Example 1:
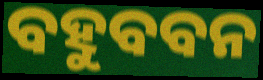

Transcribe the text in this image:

ବହୁବବନ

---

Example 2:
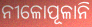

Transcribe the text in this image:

ନୀଳୋପୂଳାନି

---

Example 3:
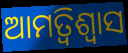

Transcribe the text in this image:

ଆମତ୍ବିଶ୍ୱାସ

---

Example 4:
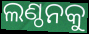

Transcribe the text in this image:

ଲଣ୍ଠନକୁ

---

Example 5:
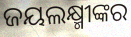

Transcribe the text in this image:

ଜୟଲକ୍ଷ୍ମୀଙ୍କର